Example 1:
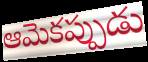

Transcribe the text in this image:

ఆమెకప్పుడు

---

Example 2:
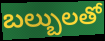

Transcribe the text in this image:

బల్బులతో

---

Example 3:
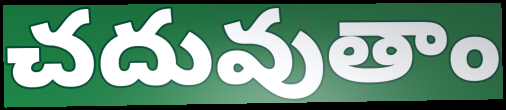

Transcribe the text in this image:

చదువుతాం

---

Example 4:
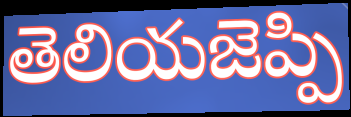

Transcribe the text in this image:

తెలియజెప్పి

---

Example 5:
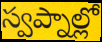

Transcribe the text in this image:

స్వప్నాల్లో